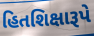
હિતશિક્ષારૂપે